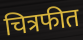
चित्रफीत